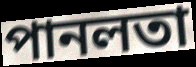
পানলতা